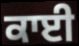
ਕਾਈ